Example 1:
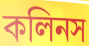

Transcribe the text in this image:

কলিনস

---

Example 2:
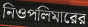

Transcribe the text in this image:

নিওপলিমারের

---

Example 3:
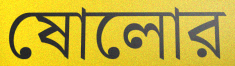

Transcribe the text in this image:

ষোলোর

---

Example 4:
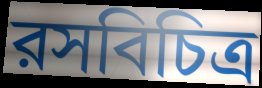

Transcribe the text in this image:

রসবিচিত্র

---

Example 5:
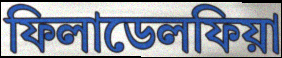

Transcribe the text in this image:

ফিলাডেলফিয়া